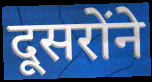
दूसरोंने